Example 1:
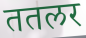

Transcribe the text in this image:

ततलर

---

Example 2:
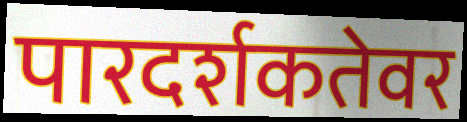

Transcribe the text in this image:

पारदर्शकतेवर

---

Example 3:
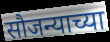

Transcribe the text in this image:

सौजन्याच्या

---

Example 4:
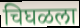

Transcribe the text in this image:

चिघळला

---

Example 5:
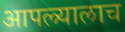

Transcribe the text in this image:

आपल्यालाच